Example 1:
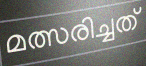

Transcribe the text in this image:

മത്സരിച്ചത്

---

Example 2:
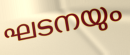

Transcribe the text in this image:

ഘടനയും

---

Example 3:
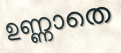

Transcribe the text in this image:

ഉണ്ണാതെ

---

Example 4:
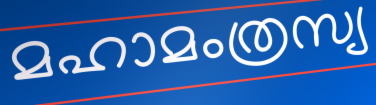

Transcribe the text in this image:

മഹാമംത്രസ്യ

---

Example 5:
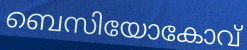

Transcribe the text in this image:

ബെസിയോകോവ്